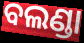
ବଲଣ୍ଡା